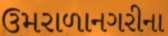
ઉમરાળાનગરીના